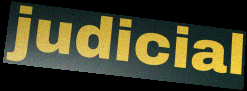
judicial